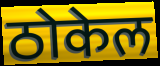
ठोकेल